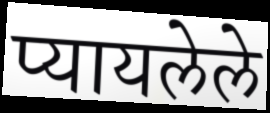
प्यायलेले